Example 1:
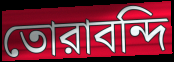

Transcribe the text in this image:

তোরাবন্দি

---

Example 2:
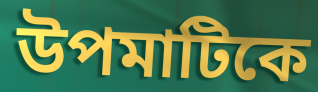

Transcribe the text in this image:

উপমাটিকে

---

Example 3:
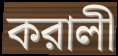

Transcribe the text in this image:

করালী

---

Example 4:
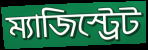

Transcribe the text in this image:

ম্যাজিস্ট্রেট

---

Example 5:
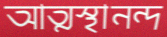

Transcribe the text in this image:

আত্মস্থানন্দ